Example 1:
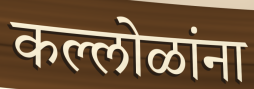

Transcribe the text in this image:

कल्लोळांना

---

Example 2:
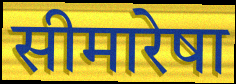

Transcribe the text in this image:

सीमारेषा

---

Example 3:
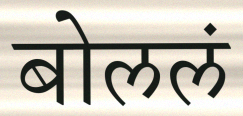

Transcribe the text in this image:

बोललं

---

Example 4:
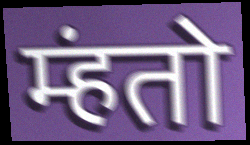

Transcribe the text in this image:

म्हंतो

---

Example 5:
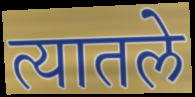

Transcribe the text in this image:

त्यातले